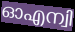
ഓഎന്വി